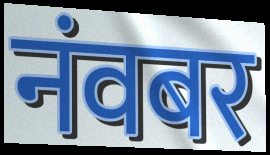
नंवबर